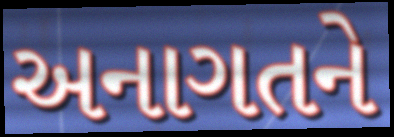
અનાગતને